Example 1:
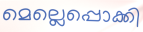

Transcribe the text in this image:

മെല്ലെപ്പൊക്കി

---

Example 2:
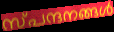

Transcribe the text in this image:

സ്പന്ദനങ്ങൾ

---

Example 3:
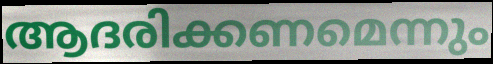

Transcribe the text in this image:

ആദരിക്കണമെന്നും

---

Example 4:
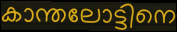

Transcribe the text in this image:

കാന്തലോട്ടിനെ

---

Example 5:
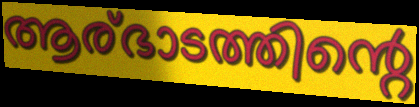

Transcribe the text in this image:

ആര്ഭാടത്തിന്റെ